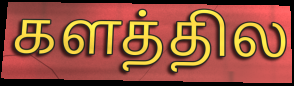
களத்தில